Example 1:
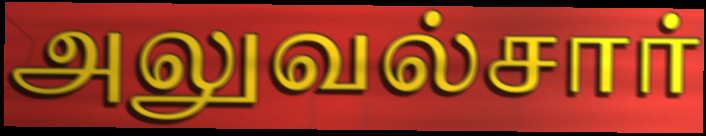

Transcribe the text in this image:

அலுவல்சார்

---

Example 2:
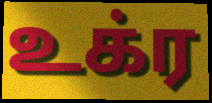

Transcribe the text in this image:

உக்ர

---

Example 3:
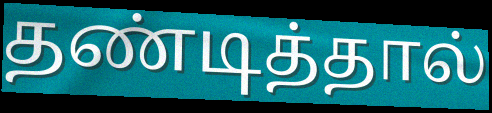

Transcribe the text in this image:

தண்டித்தால்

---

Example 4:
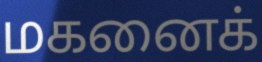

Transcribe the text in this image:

மகனைக்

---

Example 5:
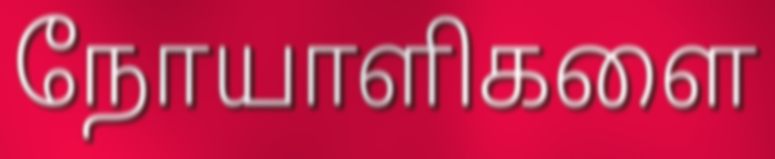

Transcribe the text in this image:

நோயாளிகளை